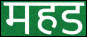
महड